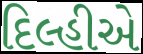
દિલ્હીએ